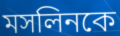
মসলিনকে